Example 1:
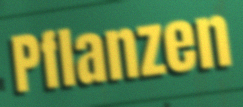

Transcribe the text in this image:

Pflanzen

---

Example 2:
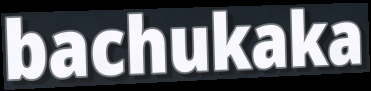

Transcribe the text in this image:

bachukaka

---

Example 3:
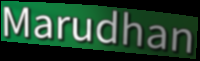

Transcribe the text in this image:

Marudhan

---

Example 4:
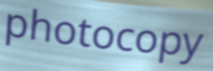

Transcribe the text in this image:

photocopy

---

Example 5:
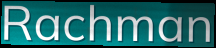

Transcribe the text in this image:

Rachman